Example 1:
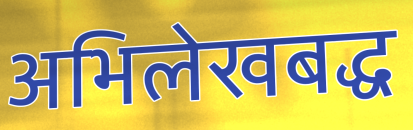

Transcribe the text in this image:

अभिलेखबद्ध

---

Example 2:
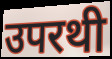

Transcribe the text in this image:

उपरथी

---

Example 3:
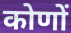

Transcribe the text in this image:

कोणों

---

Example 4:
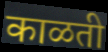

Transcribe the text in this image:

काळती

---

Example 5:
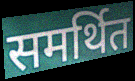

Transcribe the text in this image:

समर्थित